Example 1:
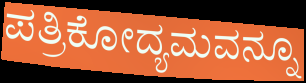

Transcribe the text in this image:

ಪತ್ರಿಕೋದ್ಯಮವನ್ನೂ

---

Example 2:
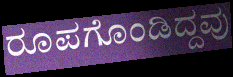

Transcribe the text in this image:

ರೂಪಗೊಂಡಿದ್ದವು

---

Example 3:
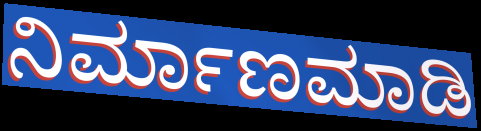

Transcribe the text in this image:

ನಿರ್ಮಾಣಮಾಡಿ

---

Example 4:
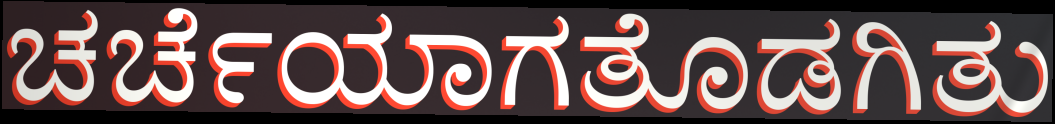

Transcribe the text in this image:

ಚರ್ಚೆಯಾಗತೊಡಗಿತು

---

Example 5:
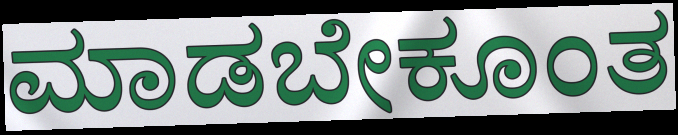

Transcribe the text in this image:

ಮಾಡಬೇಕೂಂತ